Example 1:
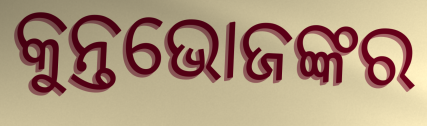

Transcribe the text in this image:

କୁନ୍ତଭୋଜଙ୍କର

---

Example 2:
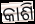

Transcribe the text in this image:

କାଶି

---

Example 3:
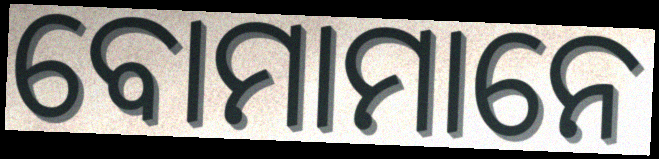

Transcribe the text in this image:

ବୋମାମାନେ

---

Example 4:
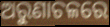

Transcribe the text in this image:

ଅରୁଣାଚଳରେ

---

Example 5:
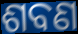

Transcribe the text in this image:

ଶବଣ